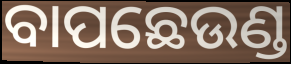
ବାପଛେଉଣ୍ଡ